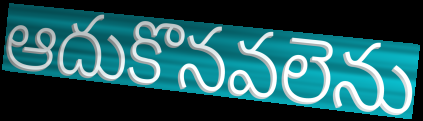
ఆదుకొనవలెను